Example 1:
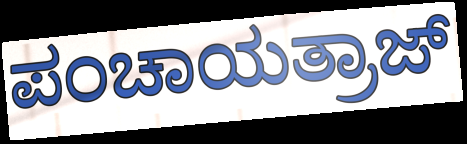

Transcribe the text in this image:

ಪಂಚಾಯತ್ರಾಜ್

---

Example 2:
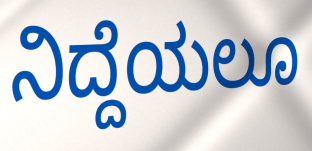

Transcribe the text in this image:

ನಿದ್ದೆಯಲೂ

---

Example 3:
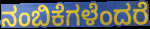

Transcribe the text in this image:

ನಂಬಿಕೆಗಳೆಂದರೆ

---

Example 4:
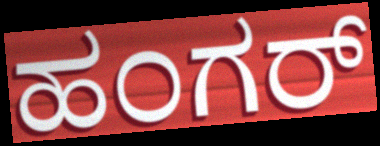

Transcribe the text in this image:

ಹಂಗರ್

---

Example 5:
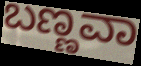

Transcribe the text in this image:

ಬಣ್ಣವಾ